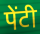
पेंटी